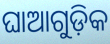
ଘାଆଗୁଡ଼ିକ